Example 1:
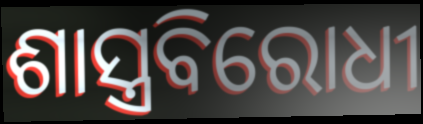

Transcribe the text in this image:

ଶାସ୍ତ୍ରବିରୋଧୀ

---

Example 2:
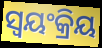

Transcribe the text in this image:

ସ୍ୱୟଂକ୍ରିୟ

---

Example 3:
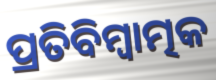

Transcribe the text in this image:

ପ୍ରତିବିମ୍ବାତ୍ମକ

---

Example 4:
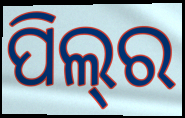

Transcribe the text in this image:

ପିଲ୍‌ର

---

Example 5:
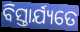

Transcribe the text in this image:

ବିସ୍ତାର୍ଯ୍ୟତେ